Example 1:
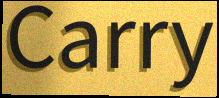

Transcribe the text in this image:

Carry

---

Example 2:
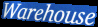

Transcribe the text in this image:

Warehouse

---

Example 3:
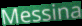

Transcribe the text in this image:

Messina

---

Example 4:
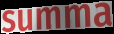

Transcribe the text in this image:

summa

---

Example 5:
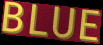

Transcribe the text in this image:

BLUE